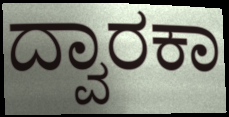
ದ್ವಾರಕಾ